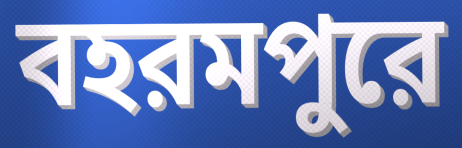
বহরমপুরে